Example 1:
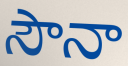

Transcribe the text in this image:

సౌనా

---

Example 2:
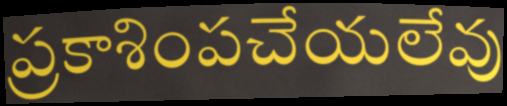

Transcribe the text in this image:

ప్రకాశింపచేయలేవు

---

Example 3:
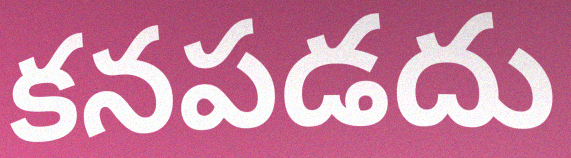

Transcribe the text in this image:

కనపడదు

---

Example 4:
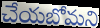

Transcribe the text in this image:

చేయబోమని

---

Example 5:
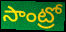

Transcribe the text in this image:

సాంట్రో